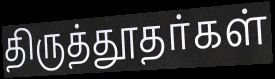
திருத்தூதர்கள்